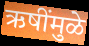
ऋषींमुळे